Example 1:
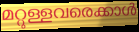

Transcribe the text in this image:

മറ്റുള്ളവരെക്കാൾ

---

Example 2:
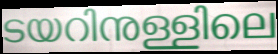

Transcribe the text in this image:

ടയറിനുള്ളിലെ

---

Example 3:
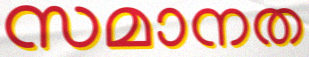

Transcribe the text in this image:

സമാനത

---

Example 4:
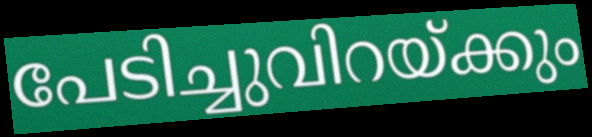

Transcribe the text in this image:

പേടിച്ചുവിറയ്ക്കും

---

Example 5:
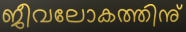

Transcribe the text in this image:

ജീവലോകത്തിനു്